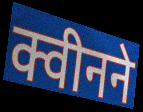
क्वीनने